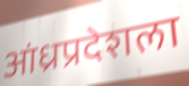
आंध्रप्रदेशला